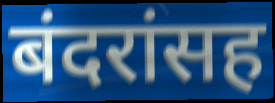
बंदरांसह